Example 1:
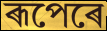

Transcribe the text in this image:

ৰূপেৰে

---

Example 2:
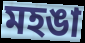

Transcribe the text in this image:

মহঙা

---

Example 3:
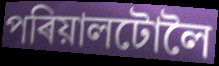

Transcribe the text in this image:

পৰিয়ালটোলৈ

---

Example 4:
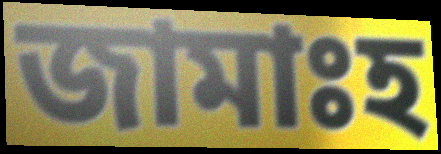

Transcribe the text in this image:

জামাঃহ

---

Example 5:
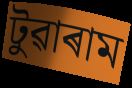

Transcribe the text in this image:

টুৱাৰাম